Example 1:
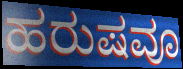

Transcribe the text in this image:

ಹರುಷವೂ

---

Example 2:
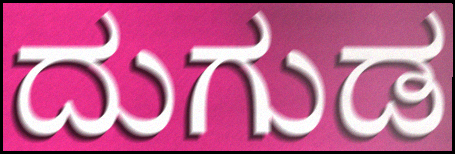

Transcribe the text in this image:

ದುಗುಡ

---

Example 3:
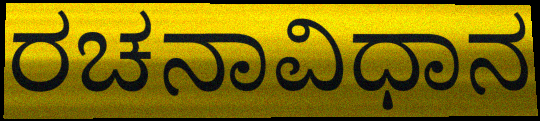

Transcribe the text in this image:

ರಚನಾವಿಧಾನ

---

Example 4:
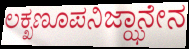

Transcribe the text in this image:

ಲಕ್ಖಣೂಪನಿಜ್ಝಾನೇನ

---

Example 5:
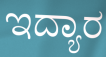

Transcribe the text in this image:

ಇದ್ಯಾರ